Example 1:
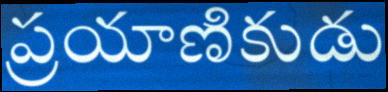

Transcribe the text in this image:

ప్రయాణికుడు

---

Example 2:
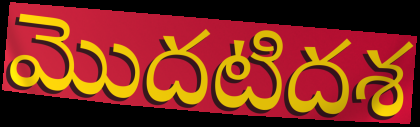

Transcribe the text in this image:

మొదటిదశ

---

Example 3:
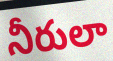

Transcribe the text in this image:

నీరులా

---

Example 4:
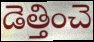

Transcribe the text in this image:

డెత్తించె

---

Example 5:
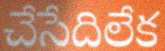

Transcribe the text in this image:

చేసేదిలేక